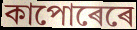
কাপোৰেৰে